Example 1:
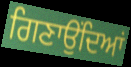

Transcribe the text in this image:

ਗਿਣਾਉਂਦਿਆਂ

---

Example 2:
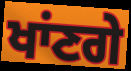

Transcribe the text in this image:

ਖਾਂਣਗੇ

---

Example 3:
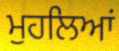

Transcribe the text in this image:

ਮੁਹਲਿਆਂ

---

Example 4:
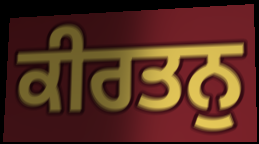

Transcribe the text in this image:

ਕੀਰਤਨੁ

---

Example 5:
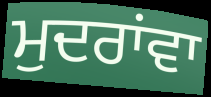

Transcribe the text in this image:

ਮੁਦਰਾਂਵਾ